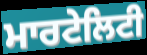
ਮਾਰਟੇਲਿਟੀ